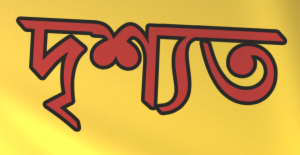
দৃশ্যত